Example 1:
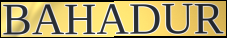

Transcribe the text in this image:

BAHADUR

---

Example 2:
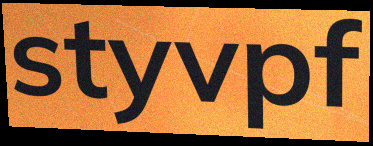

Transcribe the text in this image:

styvpf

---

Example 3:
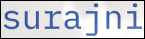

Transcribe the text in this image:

surajni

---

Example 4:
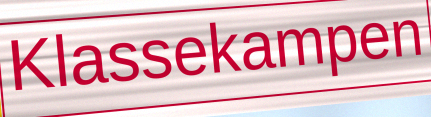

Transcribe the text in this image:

Klassekampen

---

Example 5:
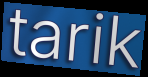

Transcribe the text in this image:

tarik